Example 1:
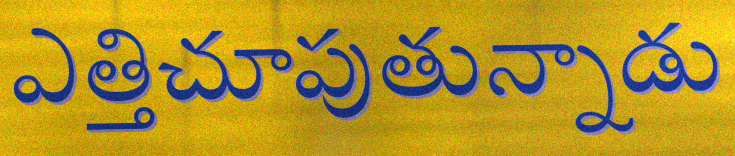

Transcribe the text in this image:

ఎత్తిచూపుతున్నాడు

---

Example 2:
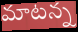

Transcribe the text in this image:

మాటన్న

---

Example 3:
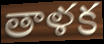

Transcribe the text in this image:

తాళక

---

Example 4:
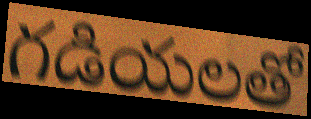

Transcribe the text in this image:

గడియలతో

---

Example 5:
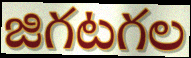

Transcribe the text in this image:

జిగటగల